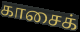
காசைக்